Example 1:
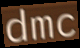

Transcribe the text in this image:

dmc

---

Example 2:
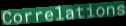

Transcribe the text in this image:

Correlations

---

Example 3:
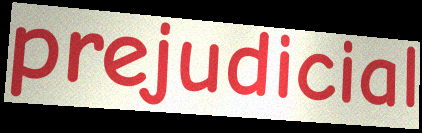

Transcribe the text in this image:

prejudicial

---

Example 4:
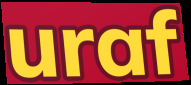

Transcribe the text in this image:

uraf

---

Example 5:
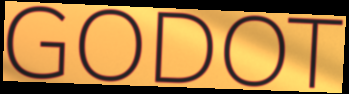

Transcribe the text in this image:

GODOT